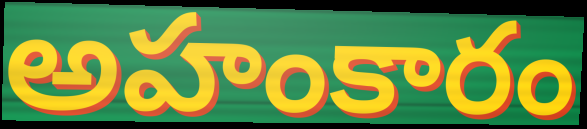
అహంకారం